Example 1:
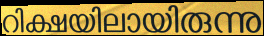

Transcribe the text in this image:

റിക്ഷയിലായിരുന്നു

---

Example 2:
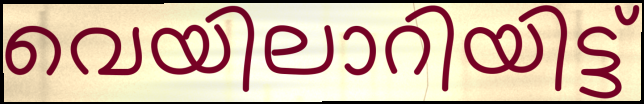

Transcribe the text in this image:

വെയിലാറിയിട്ട്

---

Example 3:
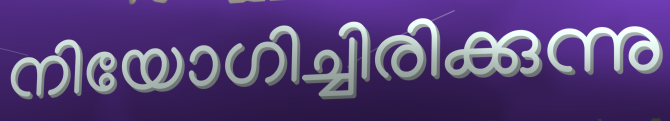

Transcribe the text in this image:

നിയോഗിച്ചിരിക്കുന്നു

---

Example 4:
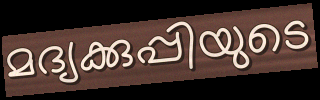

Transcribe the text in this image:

മദ്യക്കുപ്പിയുടെ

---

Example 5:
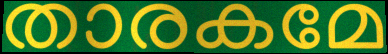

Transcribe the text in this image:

താരകമേ